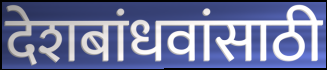
देशबांधवांसाठी